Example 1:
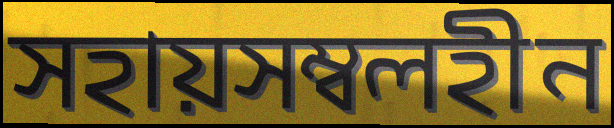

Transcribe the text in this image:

সহায়সম্বলহীন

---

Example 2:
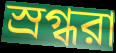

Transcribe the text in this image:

স্রগ্ধরা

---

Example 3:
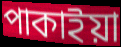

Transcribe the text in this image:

পাকাইয়া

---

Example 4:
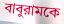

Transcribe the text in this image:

বাবুরামকে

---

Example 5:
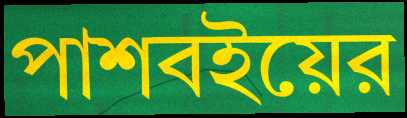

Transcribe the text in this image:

পাশবইয়ের